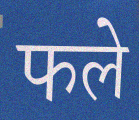
फले